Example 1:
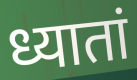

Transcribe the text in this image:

ध्यातां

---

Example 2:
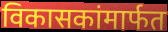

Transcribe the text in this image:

विकासकांमार्फत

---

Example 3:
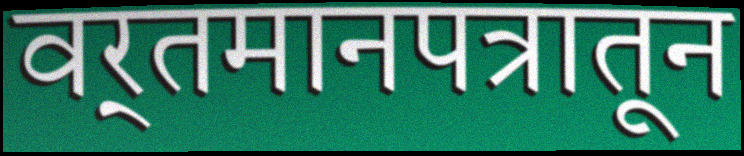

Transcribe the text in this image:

वर्तमानपत्रातून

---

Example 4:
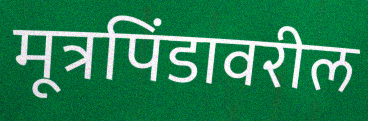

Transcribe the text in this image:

मूत्रपिंडावरील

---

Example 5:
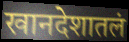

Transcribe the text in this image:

खानदेशातलं